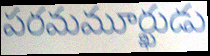
పరమమూర్ఖుడు